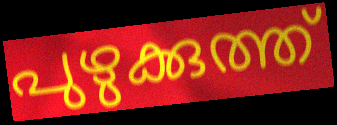
പുഴുക്കുത്ത്